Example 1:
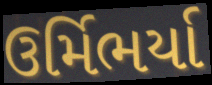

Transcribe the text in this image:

ઉર્મિભર્યા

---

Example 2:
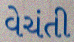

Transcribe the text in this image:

વેચંતી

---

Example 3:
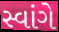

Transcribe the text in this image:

સ્વાંગે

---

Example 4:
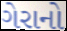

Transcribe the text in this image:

ગેરાનો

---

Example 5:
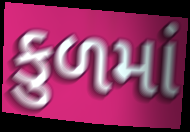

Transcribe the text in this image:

કુળમાં